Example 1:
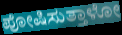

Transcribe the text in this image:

ಪೋಷಿಸುತ್ತಾಳೋ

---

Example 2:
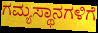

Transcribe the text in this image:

ಗಮ್ಯಸ್ಥಾನಗಳಿಗೆ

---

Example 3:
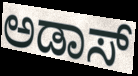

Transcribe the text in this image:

ಅಡಾಸ್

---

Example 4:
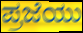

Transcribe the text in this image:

ಪ್ರಜೆಯು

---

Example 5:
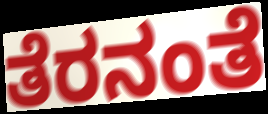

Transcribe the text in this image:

ತೆರನಂತೆ